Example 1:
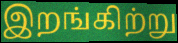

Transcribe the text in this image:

இறங்கிற்று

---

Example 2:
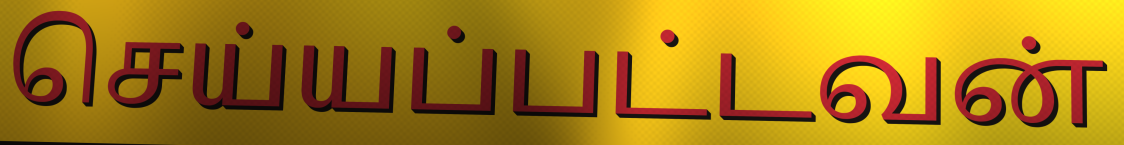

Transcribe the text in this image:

செய்யப்பட்டவன்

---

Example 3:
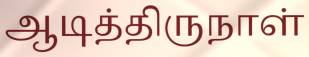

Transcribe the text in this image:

ஆடித்திருநாள்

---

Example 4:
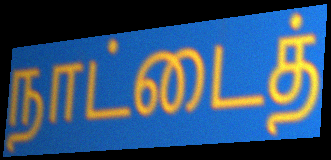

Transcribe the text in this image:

நாட்டைத்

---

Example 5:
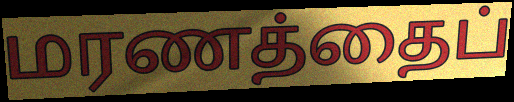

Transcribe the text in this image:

மரணத்தைப்